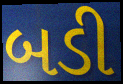
બડી